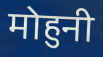
मोहुनी